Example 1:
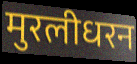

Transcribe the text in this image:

मुरलीधरन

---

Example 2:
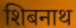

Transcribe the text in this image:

शिबनाथ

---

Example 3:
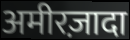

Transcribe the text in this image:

अमीरज़ादा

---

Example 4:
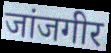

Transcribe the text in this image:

जांजगीर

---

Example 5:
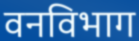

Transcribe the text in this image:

वनविभाग